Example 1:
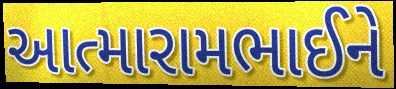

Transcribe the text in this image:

આત્મારામભાઈને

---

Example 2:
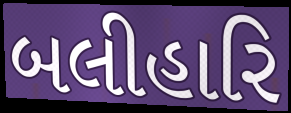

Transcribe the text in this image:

બલીહારિ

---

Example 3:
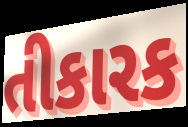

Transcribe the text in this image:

તીકારક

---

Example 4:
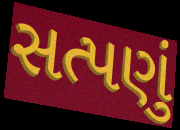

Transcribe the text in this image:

સત્પણું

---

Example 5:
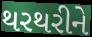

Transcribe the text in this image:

થરથરીને